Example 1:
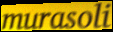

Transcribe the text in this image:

murasoli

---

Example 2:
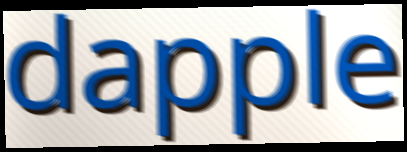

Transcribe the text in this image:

dapple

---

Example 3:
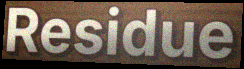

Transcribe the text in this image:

Residue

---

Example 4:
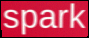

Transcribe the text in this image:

spark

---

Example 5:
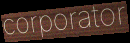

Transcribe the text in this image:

corporator